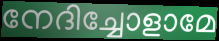
നേദിച്ചോളാമേ